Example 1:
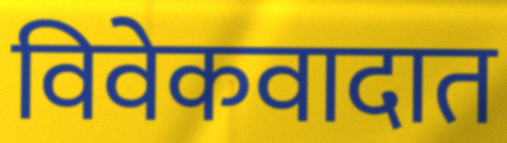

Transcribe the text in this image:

विवेकवादात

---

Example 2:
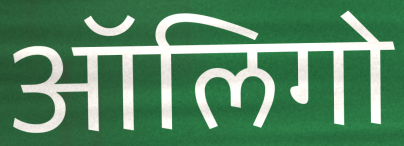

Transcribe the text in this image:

ऑलिगो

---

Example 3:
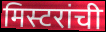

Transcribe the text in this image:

मिस्टरांची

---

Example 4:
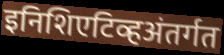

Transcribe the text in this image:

इनिशिएटिव्हअंतर्गत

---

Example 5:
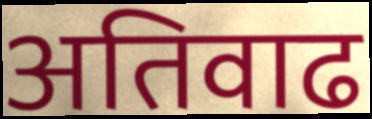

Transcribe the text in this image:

अतिवाढ